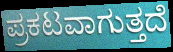
ಪ್ರಕಟವಾಗುತ್ತದೆ